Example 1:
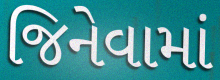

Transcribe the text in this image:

જિનેવામાં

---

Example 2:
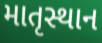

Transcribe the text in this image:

માતૃસ્થાન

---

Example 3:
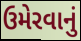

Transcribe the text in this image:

ઉમેરવાનું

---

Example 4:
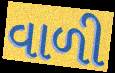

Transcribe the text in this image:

વાળી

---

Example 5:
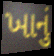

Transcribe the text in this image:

ખાનું